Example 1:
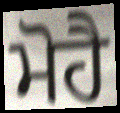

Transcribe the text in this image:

ਮੋਹੈ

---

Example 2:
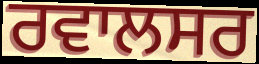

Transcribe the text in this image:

ਰਵਾਲਸਰ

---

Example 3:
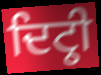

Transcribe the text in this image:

ਦਿਟ੍ਠੀ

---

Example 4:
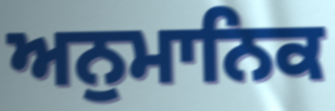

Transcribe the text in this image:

ਅਨੁਮਾਨਿਕ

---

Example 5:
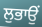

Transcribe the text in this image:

ਲੁਭਾਉਂ